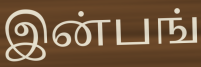
இன்பங்